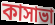
কাসাভা